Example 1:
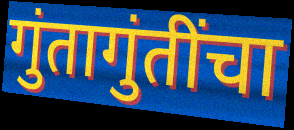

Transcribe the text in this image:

गुंतागुंतींचा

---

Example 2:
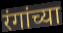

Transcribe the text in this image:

रंगांच्या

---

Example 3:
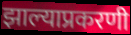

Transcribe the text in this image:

झाल्याप्रकरणी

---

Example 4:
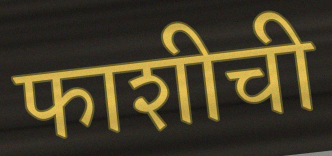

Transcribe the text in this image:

फाशीची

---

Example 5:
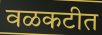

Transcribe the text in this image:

वळकटीत